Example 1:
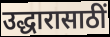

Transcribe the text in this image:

उद्धारासाठीं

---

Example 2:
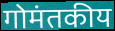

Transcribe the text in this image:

गोमंतकीय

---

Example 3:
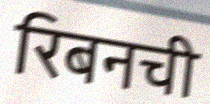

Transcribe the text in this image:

रिबनची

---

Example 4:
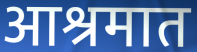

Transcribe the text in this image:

आश्रमात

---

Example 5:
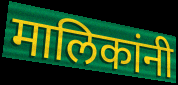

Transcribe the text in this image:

मालिकांनी